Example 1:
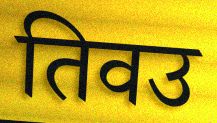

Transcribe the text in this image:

तिवउ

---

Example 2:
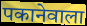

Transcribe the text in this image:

पकानेवाला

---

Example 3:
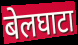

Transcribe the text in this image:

बेलघाटा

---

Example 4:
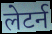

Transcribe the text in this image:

लेटर्न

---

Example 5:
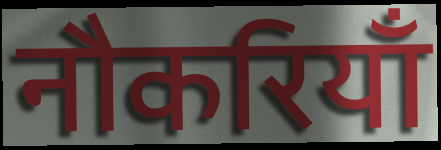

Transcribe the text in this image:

नौकरियाँ